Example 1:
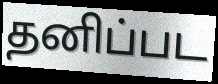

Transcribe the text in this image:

தனிப்பட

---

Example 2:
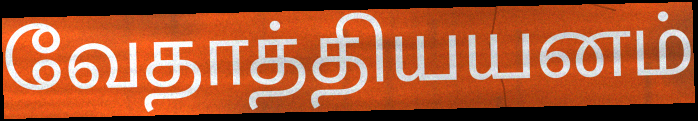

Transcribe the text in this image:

வேதாத்தியயனம்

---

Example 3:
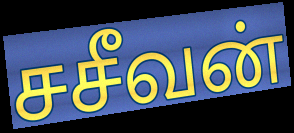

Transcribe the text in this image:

சசீவன்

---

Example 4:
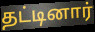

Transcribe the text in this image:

தட்டினார்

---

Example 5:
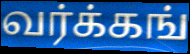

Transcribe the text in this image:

வர்க்கங்